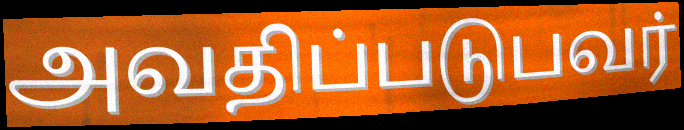
அவதிப்படுபவர்